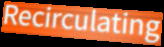
Recirculating